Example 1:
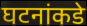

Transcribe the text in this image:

घटनांकडे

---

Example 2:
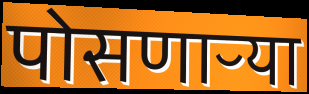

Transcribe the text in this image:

पोसणाऱ्या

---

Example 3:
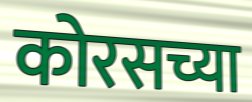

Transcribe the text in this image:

कोरसच्या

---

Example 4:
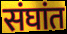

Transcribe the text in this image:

संघांत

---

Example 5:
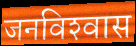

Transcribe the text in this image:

जनविश्वास